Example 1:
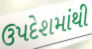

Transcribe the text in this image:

ઉપદેશમાંથી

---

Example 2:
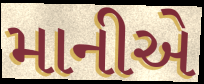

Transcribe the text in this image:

માનીએ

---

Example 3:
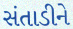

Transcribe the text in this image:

સંતાડીને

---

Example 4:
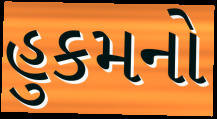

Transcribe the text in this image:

હુકમનો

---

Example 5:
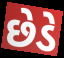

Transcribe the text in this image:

છેડે